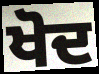
ਖੋਦ